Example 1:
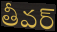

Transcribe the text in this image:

తీవర్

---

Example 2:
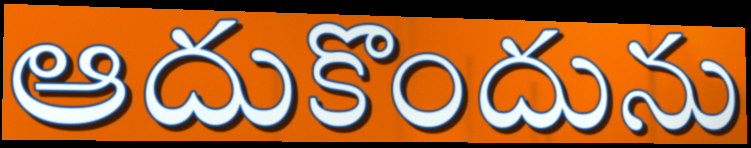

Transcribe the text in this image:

ఆదుకొందును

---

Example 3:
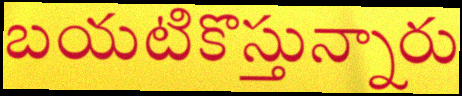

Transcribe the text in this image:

బయటికొస్తున్నారు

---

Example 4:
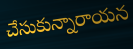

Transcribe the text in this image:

చేసుకున్నారాయన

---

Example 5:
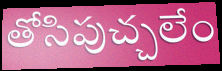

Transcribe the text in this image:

తోసిపుచ్చలేం